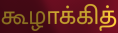
கூழாக்கித்